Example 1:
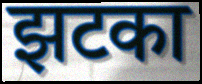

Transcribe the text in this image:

झटका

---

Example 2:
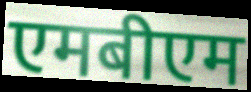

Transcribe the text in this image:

एमबीएम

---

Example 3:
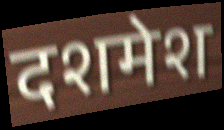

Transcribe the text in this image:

दशमेश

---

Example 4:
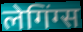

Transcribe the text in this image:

लेगिंग्स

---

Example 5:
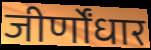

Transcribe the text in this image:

जीर्णोंधार